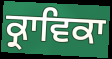
ਕ੍ਰਾਵਿਕਾ